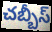
చబ్బీస్